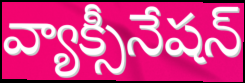
వ్యాక్సీనేషన్